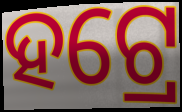
ହଟ୍ରେ